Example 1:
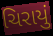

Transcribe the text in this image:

ચિરાયું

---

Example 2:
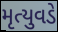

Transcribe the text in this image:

મૃત્યુવડે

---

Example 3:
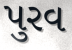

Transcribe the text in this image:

પુરવ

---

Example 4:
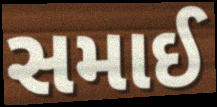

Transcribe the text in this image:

સમાઈ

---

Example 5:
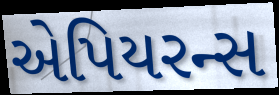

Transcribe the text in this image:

એપિયરન્સ